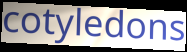
cotyledons